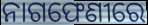
ନାଗଫେଣୀରେ